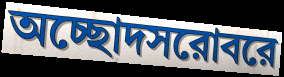
অচ্ছোদসরোবরে